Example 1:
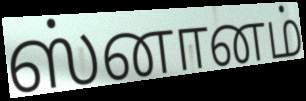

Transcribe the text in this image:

ஸ்னானம்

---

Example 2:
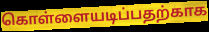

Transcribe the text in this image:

கொள்ளையடிப்பதற்காக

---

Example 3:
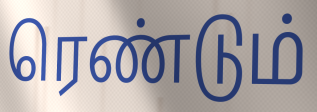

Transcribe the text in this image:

ரெண்டும்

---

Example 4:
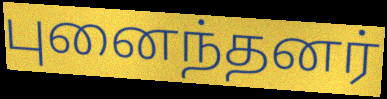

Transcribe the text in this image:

புனைந்தனர்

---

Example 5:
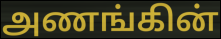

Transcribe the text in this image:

அணங்கின்